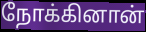
நோக்கினான்